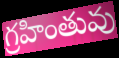
గ్రహింతువు